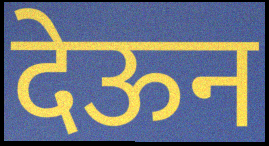
देऊन